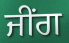
ਜੀਂਗ